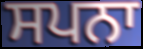
ਸਪਨਾ